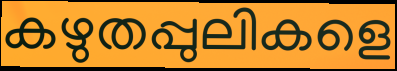
കഴുതപ്പുലികളെ